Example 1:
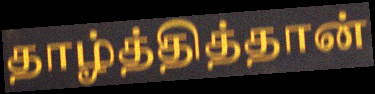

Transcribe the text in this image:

தாழ்த்தித்தான்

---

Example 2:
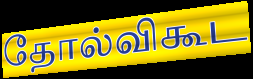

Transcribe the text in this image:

தோல்விகூட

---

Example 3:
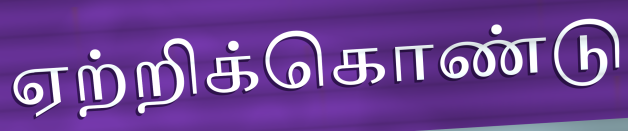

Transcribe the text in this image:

ஏற்றிக்கொண்டு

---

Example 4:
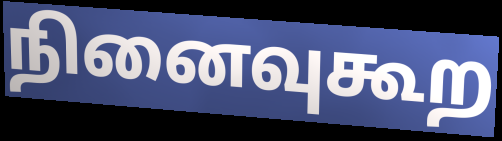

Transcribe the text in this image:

நினைவுகூற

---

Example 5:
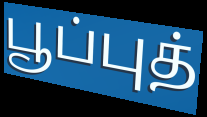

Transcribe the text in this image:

பூப்புத்